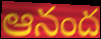
ఆనంద